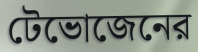
টেভোজেনের